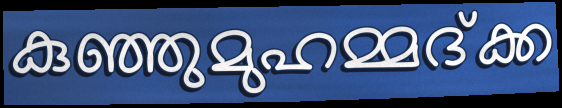
കുഞ്ഞുമുഹമ്മദ്ക്ക